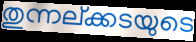
തുന്നല്ക്കടയുടെ